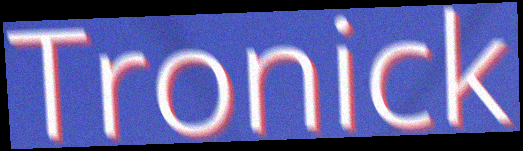
Tronick